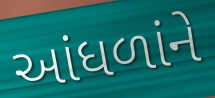
આંધળાંને